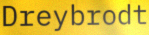
Dreybrodt